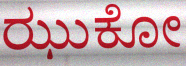
ಝುಕೋ